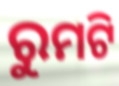
ରୁମଟି